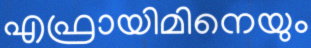
എഫ്രായിമിനെയും